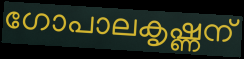
ഗോപാലകൃഷ്ണന്